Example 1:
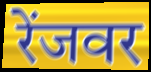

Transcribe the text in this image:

रेंजवर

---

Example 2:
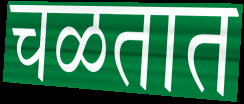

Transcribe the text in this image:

चळतात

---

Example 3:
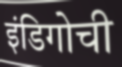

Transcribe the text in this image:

इंडिगोची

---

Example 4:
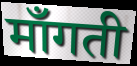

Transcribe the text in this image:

माँगती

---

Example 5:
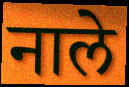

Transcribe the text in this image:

नाले